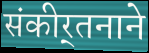
संकीर्तनाने